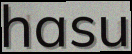
hasu